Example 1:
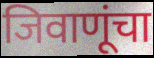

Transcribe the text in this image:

जिवाणूंचा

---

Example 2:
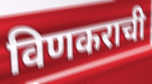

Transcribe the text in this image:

विणकराची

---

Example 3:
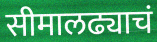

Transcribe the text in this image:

सीमालढ्याचं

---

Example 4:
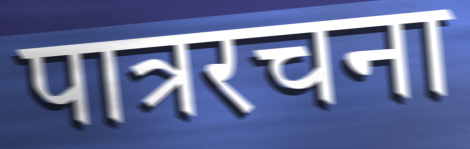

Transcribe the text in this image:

पात्ररचना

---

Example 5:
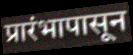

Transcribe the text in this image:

प्रारंभापासून